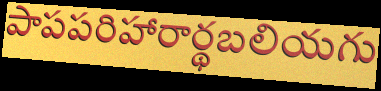
పాపపరిహారార్థబలియగు